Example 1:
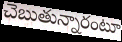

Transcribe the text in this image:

చెబుతున్నారంటూ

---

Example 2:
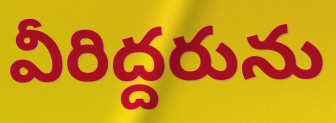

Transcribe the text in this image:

వీరిద్దరును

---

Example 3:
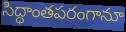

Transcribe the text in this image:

సిద్ధాంతపరంగానూ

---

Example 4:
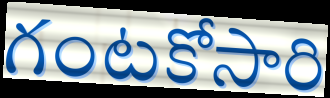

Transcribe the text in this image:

గంటకోసారి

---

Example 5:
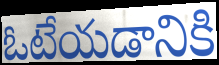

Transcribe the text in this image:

ఓటేయడానికి